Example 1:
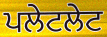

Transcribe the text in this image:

ਪਲੇਟਲੇਟ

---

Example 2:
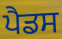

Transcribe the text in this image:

ਪੈਡਸ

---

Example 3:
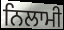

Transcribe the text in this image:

ਨਿਲਾਮੀ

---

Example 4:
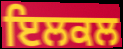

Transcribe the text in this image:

ਇਲਕਲ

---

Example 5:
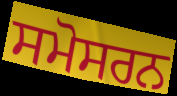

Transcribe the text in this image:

ਸਮੋਸਰਨ